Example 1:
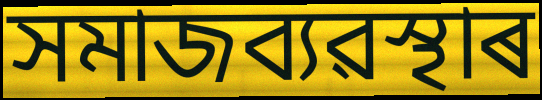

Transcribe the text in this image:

সমাজব্যৱস্থাৰ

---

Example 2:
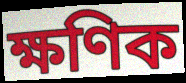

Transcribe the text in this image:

ক্ষণিক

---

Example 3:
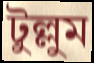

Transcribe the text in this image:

টুল্লুম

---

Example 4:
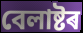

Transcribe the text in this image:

বেলাষ্টৰ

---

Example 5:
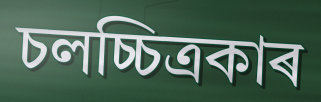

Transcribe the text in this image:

চলচ্চিত্ৰকাৰ